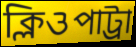
ক্লিওপাট্রা